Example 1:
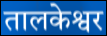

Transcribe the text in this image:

तालकेश्वर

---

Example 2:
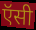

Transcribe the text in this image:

ऍसी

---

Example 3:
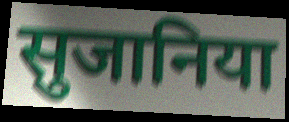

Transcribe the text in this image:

सुजानिया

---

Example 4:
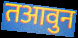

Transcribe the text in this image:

तआवुन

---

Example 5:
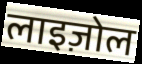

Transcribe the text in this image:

लाइज़ोल